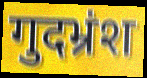
गुदभ्रंश